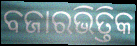
ବଜାରଭିତ୍ତିକ